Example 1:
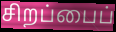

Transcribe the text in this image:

சிறப்பைப்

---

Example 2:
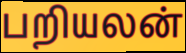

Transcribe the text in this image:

பறியலன்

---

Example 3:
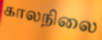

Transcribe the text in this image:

காலநிலை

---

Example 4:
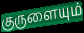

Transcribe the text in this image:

குருளையும்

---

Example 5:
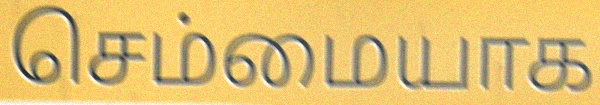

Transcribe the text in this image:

செம்மையாக